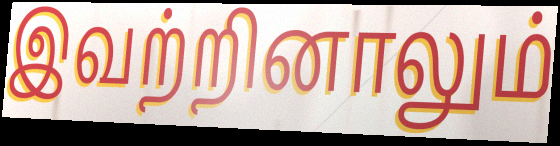
இவற்றினாலும்